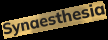
Synaesthesia